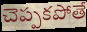
చెప్పకపోతే